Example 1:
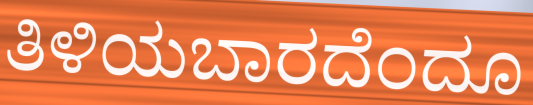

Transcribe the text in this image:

ತಿಳಿಯಬಾರದೆಂದೂ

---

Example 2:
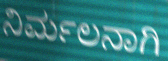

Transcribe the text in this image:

ನಿರ್ಮಲನಾಗಿ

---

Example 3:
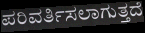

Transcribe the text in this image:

ಪರಿವರ್ತಿಸಲಾಗುತ್ತದೆ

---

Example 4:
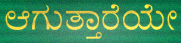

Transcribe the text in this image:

ಆಗುತ್ತಾರೆಯೇ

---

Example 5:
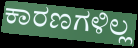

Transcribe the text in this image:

ಕಾರಣಗಳಿಲ್ಲ